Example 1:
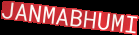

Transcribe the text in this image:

JANMABHUMI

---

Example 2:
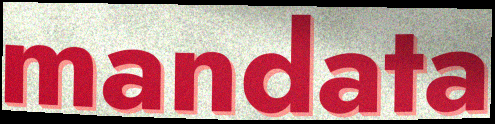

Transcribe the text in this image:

mandata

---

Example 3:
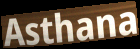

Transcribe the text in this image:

Asthana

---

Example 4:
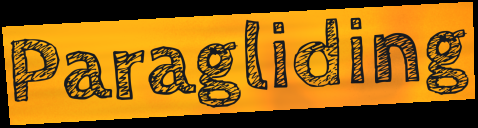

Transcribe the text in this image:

Paragliding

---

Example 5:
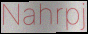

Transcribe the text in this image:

Nahrpj